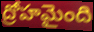
ద్రోహమైంది